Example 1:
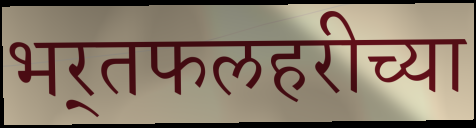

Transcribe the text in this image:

भर्तफलहरीच्या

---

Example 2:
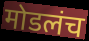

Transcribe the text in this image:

मोडलंच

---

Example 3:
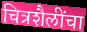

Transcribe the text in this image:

चित्रशैलींचा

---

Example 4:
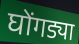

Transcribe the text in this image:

घोंगड्या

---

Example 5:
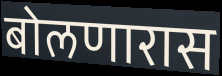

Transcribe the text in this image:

बोलणारास